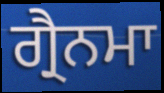
ਗ੍ਰੈਨਮਾ